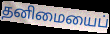
தனிமையைப்